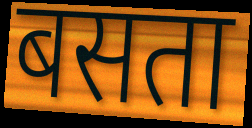
बसता